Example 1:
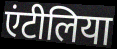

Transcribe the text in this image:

एंटीलिया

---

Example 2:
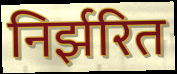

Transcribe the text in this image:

निर्झरित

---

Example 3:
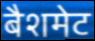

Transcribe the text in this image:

बैशमेट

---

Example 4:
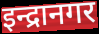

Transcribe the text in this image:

इन्द्रानगर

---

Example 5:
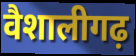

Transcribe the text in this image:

वैशालीगढ़